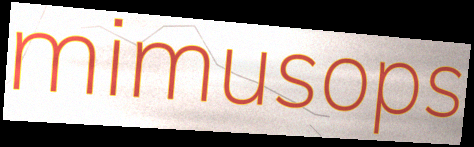
mimusops